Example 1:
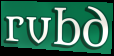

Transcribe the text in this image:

rubd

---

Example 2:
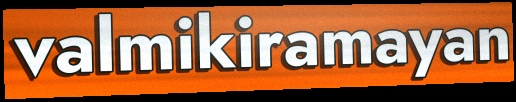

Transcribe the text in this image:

valmikiramayan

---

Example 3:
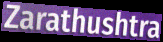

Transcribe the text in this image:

Zarathushtra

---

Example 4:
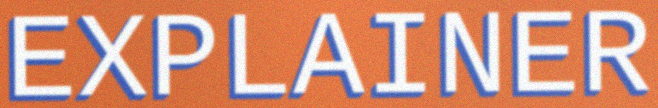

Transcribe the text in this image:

EXPLAINER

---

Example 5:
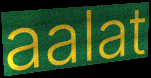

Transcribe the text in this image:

aalat